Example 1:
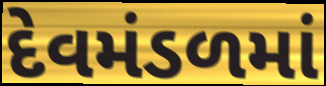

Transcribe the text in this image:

દેવમંડળમાં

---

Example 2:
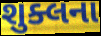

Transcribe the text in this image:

શુક્લના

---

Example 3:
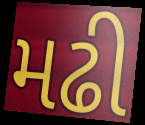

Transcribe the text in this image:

મઢી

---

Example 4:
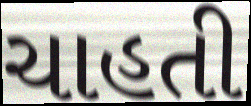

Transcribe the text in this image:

ચાહતી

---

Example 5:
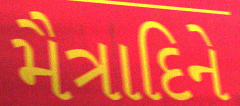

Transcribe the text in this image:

મૈત્રાદિને